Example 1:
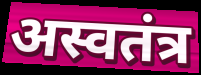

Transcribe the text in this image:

अस्वतंत्र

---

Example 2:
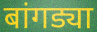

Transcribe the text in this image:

बांगड्या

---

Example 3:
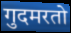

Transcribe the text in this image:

गुदमरतो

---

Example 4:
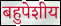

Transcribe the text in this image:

बहुपेशीय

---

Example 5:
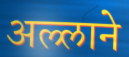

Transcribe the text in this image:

अल्लाने